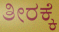
ತೀರಕ್ಕೆ